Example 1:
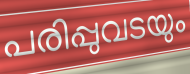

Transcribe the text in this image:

പരിപ്പുവടയും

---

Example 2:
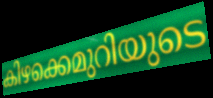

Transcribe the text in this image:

കിഴക്കെമുറിയുടെ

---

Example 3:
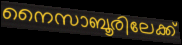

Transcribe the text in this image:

നൈസാബൂരിലേക്ക്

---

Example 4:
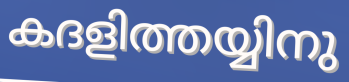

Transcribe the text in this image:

കദളിത്തയ്യിനു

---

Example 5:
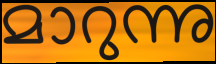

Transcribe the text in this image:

മാറുന്നു